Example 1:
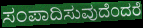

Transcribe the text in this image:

ಸಂಪಾದಿಸುವುದೆಂದರೆ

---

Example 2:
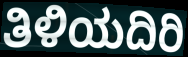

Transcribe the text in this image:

ತಿಳಿಯದಿರಿ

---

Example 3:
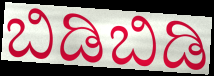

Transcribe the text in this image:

ಬಿಡಿಬಿಡಿ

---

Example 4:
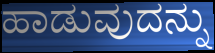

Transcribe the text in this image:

ಹಾಡುವುದನ್ನು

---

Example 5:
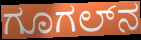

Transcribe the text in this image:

ಗೂಗಲ್‌ನ